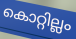
കൊറ്റില്ലം